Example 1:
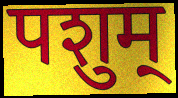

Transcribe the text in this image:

पशुम्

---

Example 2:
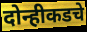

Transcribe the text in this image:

दोन्हीकडचे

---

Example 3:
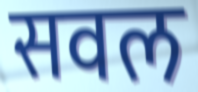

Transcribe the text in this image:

सवल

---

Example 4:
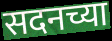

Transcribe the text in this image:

सदनच्या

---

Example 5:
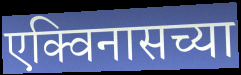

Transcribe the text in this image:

एक्विनासच्या